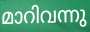
മാറിവന്നു